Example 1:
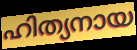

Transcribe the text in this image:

ഹിത്യനായ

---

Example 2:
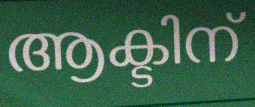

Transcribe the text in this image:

ആക്ടിന്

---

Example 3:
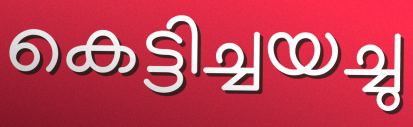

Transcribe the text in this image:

കെട്ടിച്ചയച്ചു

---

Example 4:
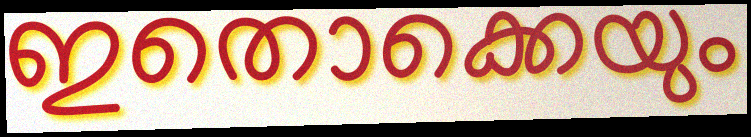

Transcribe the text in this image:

ഇതൊക്കെയും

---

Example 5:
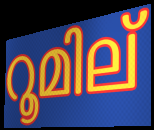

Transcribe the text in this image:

റൂമില്